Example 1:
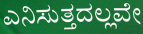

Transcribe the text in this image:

ಎನಿಸುತ್ತದಲ್ಲವೇ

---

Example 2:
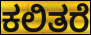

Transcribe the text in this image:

ಕಲಿತರೆ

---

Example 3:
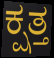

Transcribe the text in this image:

ಕ್ಷತ್ತ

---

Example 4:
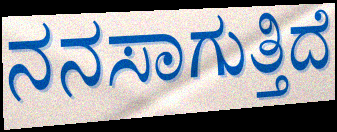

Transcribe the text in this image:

ನನಸಾಗುತ್ತಿದೆ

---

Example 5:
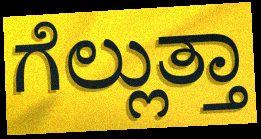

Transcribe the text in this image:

ಗೆಲ್ಲುತ್ತಾ